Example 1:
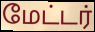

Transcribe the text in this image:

மேட்டர்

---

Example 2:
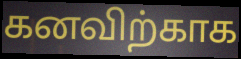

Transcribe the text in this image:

கனவிற்காக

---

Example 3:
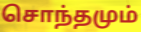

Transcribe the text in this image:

சொந்தமும்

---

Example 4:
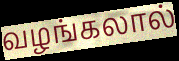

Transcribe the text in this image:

வழங்கலால்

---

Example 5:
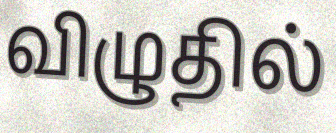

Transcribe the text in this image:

விழுதில்